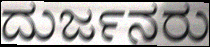
ದುರ್ಜನರು